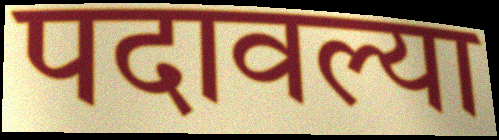
पदावल्या